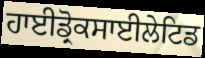
ਹਾਈਡ੍ਰੋਕਸਾਈਲੇਟਿਡ